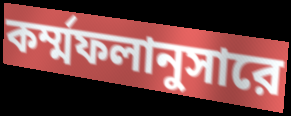
কর্ম্মফলানুসারে